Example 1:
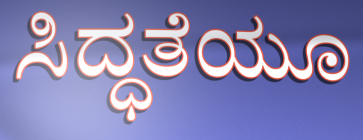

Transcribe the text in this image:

ಸಿದ್ಧತೆಯೂ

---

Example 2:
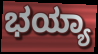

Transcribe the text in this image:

ಭಯ್ಯಾ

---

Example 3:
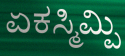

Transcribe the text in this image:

ಏಕಸ್ಮಿಮ್ಪಿ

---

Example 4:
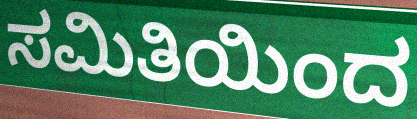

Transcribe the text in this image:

ಸಮಿತಿಯಿಂದ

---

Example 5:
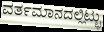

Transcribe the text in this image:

ವರ್ತಮಾನದಲ್ಲಿಟ್ಟು